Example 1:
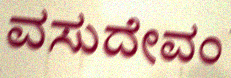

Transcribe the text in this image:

ವಸುದೇವಂ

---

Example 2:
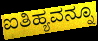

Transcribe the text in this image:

ಐತಿಹ್ಯವನ್ನೂ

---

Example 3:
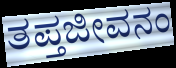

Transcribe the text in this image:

ತಪ್ತಜೀವನಂ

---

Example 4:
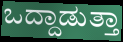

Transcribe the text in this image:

ಒದ್ದಾಡುತ್ತಾ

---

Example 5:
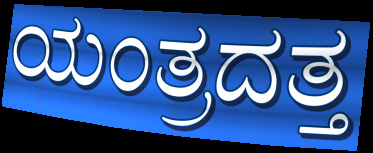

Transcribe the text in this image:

ಯಂತ್ರದತ್ತ